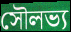
সৌলভ্য